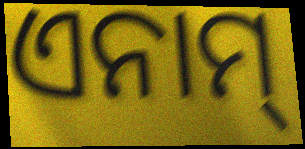
ଏନାମ୍